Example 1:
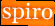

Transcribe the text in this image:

spiro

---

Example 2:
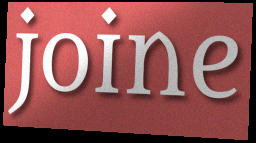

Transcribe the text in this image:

joine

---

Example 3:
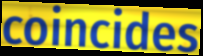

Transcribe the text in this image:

coincides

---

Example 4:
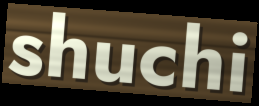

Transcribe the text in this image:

shuchi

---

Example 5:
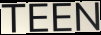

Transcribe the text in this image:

TEEN